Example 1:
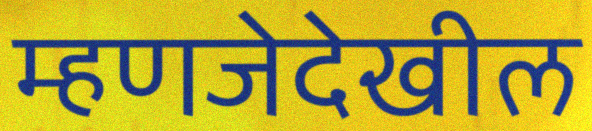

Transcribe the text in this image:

म्हणजेदेखील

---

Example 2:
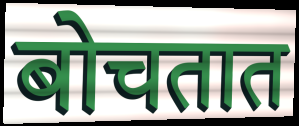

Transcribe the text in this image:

बोचतात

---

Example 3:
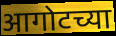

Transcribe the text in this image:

आगोटच्या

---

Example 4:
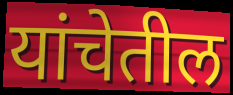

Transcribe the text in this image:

यांचेतील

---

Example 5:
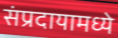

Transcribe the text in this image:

संप्रदायामध्ये